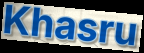
Khasru